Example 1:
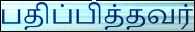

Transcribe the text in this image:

பதிப்பித்தவர்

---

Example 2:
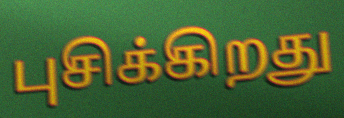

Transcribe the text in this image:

புசிக்கிறது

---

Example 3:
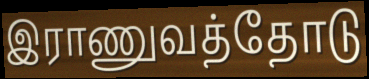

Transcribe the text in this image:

இராணுவத்தோடு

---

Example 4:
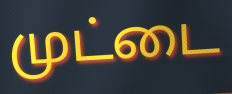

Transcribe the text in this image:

முட்டை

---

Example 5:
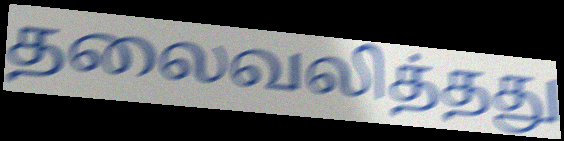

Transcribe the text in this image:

தலைவலித்தது